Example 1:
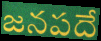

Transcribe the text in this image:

జనపదే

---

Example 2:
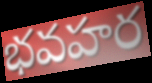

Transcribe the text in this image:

భవహర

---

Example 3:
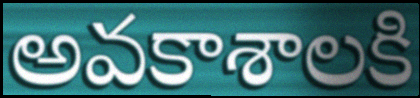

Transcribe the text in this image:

అవకాశాలకి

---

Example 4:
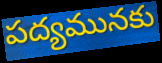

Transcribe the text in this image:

పద్యమునకు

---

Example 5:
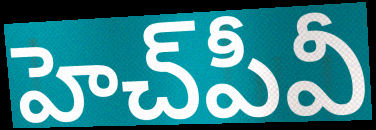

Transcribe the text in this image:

హెచ్‌పీవీ